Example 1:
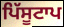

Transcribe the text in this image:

ਪਿੱਸੂਟਾਪ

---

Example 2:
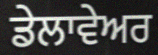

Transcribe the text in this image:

ਡੇਲਾਵੇਅਰ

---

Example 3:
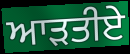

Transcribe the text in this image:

ਆੜਤੀਏ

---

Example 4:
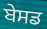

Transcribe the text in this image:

ਬੇਸਡ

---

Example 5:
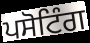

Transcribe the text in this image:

ਪਸੋਟਿੰਗ